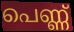
പെണ്ണ്